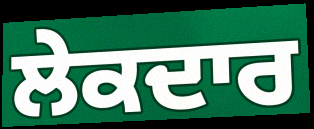
ਲੇਕਦਾਰ